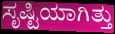
ಸೃಷ್ಟಿಯಾಗಿತ್ತು